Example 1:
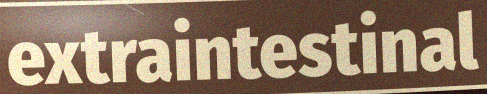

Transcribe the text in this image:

extraintestinal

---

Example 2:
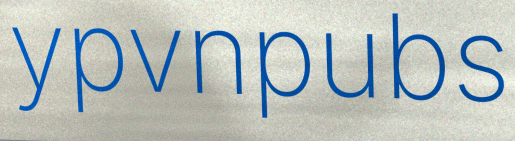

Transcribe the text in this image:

ypvnpubs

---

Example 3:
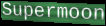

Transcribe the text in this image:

Supermoon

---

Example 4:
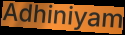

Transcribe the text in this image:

Adhiniyam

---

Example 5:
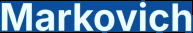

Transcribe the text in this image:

Markovich